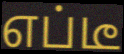
எப்டீ